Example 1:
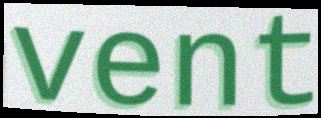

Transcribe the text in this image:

vent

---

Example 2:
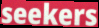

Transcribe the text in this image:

seekers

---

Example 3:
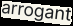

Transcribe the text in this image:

arrogant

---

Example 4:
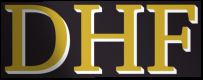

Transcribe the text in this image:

DHF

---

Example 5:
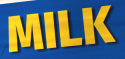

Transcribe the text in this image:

MILK